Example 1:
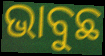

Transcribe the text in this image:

ଭାବୁଛ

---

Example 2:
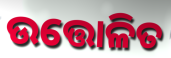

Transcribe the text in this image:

ଉତ୍ତୋଳିତ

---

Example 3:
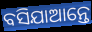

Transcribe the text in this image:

ବସିଯାଆନ୍ତେ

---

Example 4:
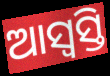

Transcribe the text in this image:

ଆସ୍ୱସ୍ତି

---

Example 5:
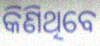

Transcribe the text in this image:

କିଣିଥିବେ